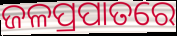
ଜଳପ୍ରପାତରେ